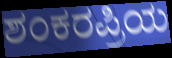
ಶಂಕರಪ್ರಿಯ